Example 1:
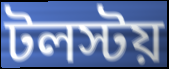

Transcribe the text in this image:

টলস্টয়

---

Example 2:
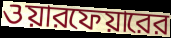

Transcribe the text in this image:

ওয়ারফেয়ারের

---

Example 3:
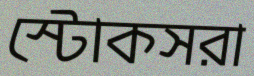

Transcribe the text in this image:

স্টোকসরা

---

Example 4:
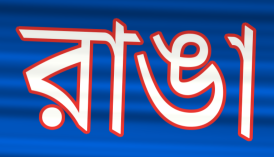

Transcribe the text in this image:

রাঙা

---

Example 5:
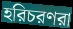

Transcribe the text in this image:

হরিচরণরা